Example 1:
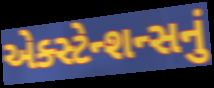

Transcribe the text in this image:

એક્સ્ટેન્શન્સનું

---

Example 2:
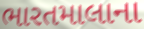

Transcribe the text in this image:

ભારતમાલાના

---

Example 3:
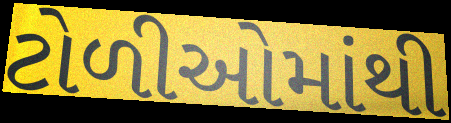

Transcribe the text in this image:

ટોળીઓમાંથી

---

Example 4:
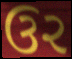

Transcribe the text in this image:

ઉર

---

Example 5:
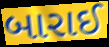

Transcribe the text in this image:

બારાઈ